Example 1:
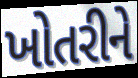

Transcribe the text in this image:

ખોતરીને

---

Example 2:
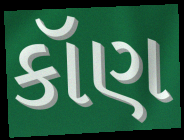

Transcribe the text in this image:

કૉણ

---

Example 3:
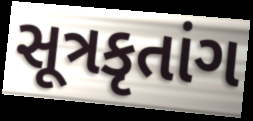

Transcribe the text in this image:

સૂત્રકૃતાંગ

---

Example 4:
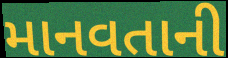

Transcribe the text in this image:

માનવતાની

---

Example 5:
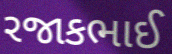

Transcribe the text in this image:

રજાકભાઈ